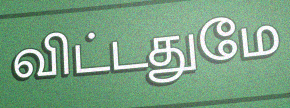
விட்டதுமே